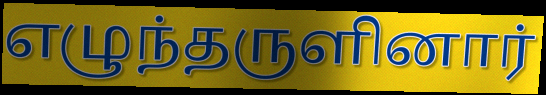
எழுந்தருளினார்